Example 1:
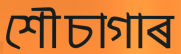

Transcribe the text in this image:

শৌচাগাৰ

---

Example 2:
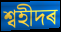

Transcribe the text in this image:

শ্বহীদৰ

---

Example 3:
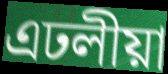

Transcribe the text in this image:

এঢলীয়া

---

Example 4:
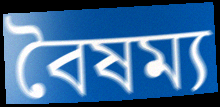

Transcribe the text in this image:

বৈষম্য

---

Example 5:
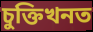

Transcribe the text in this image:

চুক্তিখনত